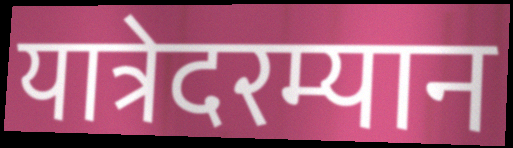
यात्रेदरम्यान